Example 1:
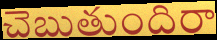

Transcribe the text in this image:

చెబుతుందిరా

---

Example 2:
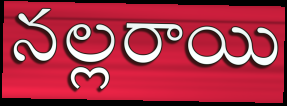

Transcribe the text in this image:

నల్లరాయి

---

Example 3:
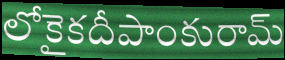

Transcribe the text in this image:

లోకైకదీపాంకురామ్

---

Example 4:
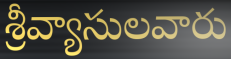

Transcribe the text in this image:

శ్రీవ్యాసులవారు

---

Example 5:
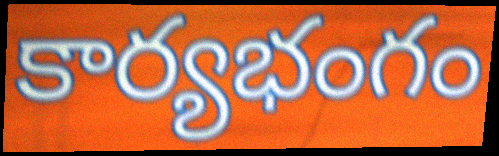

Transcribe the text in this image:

కార్యభంగం